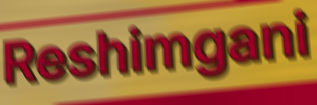
Reshimgani